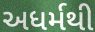
અધર્મથી